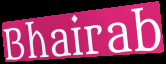
Bhairab